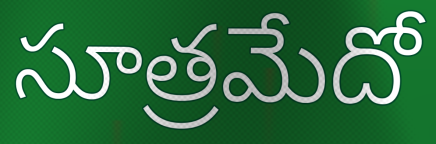
సూత్రమేదో